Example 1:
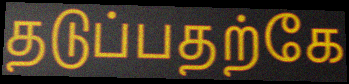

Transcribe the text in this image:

தடுப்பதற்கே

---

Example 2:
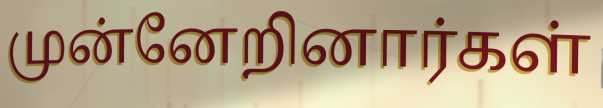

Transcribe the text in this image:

முன்னேறினார்கள்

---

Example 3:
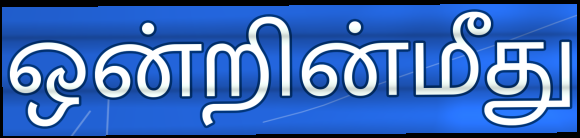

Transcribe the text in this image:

ஒன்றின்மீது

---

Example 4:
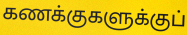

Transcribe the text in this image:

கணக்குகளுக்குப்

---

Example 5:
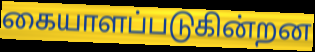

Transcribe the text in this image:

கையாளப்படுகின்றன